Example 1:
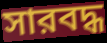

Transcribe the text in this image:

সারবদ্ধ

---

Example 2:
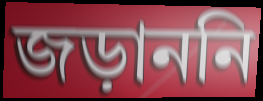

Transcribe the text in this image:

জড়াননি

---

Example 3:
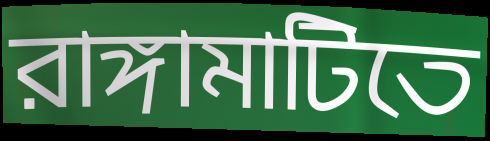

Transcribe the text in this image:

রাঙ্গামাটিতে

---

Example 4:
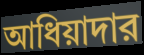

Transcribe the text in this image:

আধিয়াদার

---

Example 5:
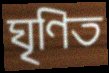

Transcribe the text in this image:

ঘৃণিত